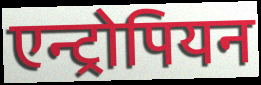
एन्ट्रोपियन